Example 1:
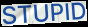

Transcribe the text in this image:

STUPID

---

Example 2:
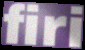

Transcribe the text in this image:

firi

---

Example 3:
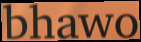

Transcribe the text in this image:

bhawo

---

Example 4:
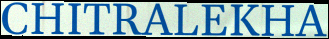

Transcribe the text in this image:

CHITRALEKHA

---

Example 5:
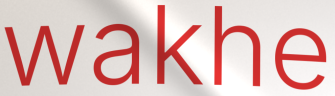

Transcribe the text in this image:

wakhe